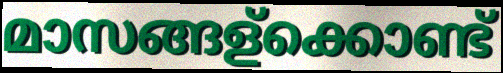
മാസങ്ങള്ക്കൊണ്ട്